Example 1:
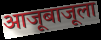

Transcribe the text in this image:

आजूबाजूला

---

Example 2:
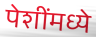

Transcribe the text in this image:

पेशींमध्ये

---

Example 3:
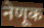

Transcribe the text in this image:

नेणूक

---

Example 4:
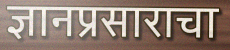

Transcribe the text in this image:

ज्ञानप्रसाराचा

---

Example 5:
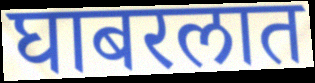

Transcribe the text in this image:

घाबरलात